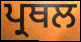
ਪ੍ਰਥਲ